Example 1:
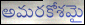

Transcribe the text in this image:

అమరకోశమై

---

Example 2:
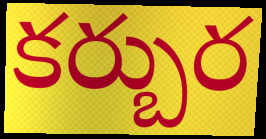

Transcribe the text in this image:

కర్బుర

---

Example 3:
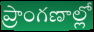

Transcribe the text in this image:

ప్రాంగణాల్లో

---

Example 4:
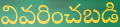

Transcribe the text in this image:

వివరించబడి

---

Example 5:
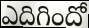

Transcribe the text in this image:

ఎదిగిందో